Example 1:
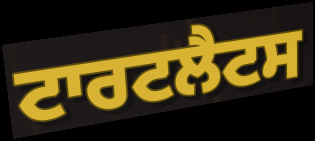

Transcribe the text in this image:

ਟਾਰਟਲੈਟਸ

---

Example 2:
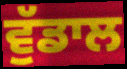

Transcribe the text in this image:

ਵੁੱਡਾਲ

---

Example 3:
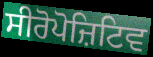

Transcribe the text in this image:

ਸੀਰੋਪੋਜ਼ਿਟਿਵ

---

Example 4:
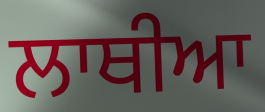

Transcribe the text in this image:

ਲਾਥੀਆ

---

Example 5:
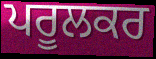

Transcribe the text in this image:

ਪਰੂਲਕਰ